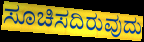
ಸೂಚಿಸದಿರುವುದು